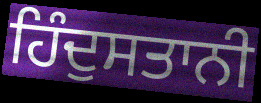
ਹਿੰਦੁਸਤਾਨੀ